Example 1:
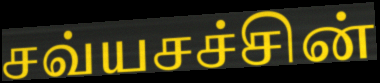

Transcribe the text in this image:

சவ்யசச்சின்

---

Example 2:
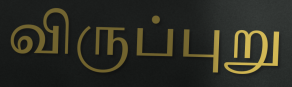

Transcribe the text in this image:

விருப்புறு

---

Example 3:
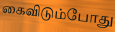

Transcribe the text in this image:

கைவிடும்போது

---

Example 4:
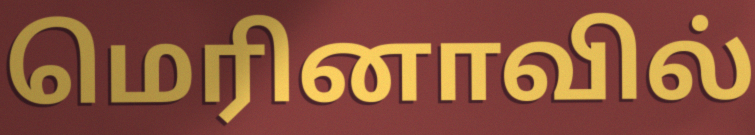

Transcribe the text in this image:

மெரினாவில்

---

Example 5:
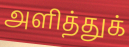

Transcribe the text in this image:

அளித்துக்